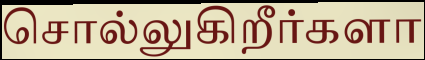
சொல்லுகிறீர்களா